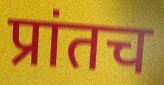
प्रांतच